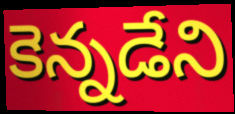
కెన్నడేని